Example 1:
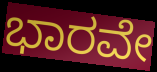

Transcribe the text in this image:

ಭಾರವೇ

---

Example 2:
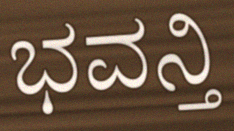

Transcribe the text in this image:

ಭವನ್ತಿ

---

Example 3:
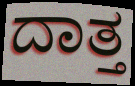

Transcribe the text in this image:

ದಾತ್ತ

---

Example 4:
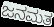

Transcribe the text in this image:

ಜನಮತ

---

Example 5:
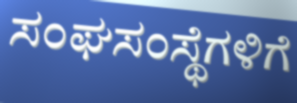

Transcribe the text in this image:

ಸಂಘಸಂಸ್ಥೆಗಳಿಗೆ